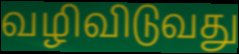
வழிவிடுவது